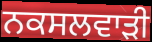
ਨਕਸਲਵਾੜੀ